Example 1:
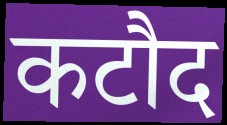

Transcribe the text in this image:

कटौद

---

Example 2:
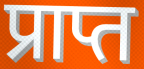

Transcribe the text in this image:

प्राप्त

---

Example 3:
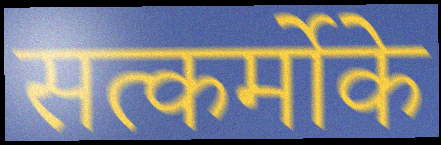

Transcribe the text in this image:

सत्कर्मोके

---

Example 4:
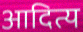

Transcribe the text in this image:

आदित्य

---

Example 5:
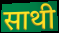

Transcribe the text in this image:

साथी